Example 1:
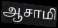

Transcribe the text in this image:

ஆசாமி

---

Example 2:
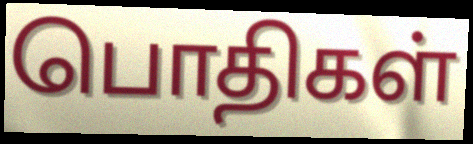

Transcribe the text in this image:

பொதிகள்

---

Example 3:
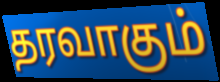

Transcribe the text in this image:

தரவாகும்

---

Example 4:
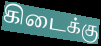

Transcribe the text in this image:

கிடைக்கு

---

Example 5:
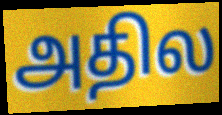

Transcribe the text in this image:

அதில